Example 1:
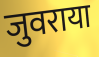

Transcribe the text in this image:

जुवराया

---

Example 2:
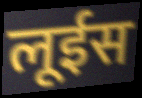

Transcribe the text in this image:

लूईस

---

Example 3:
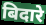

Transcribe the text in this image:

बिदारे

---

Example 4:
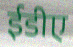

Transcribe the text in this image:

ईडीए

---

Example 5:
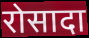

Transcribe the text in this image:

रोसादा